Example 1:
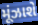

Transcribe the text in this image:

મૂંઝાશે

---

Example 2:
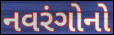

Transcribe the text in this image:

નવરંગોનો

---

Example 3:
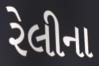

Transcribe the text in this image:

રેલીના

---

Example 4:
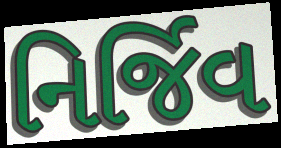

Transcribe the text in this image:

નિર્જિવ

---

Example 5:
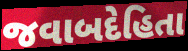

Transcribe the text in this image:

જવાબદેહિતા